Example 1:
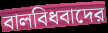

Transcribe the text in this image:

বালবিধবাদের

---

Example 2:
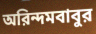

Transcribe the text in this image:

অরিন্দমবাবুর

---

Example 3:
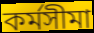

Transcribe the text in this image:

কর্মসীমা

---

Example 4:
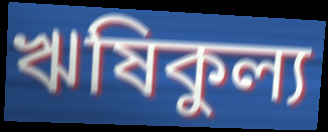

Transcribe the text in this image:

ঋষিকুল্য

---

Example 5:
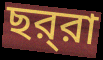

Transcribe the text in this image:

ছর্‌রা